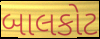
બાલકોટ